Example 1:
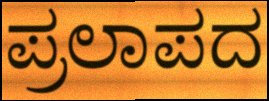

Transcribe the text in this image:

ಪ್ರಲಾಪದ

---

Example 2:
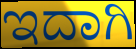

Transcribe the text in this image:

ಇದಾಗಿ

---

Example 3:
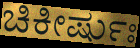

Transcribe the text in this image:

ಚಿಕೀರ್ಷುಃ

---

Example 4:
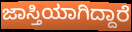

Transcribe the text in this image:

ಜಾಸ್ತಿಯಾಗಿದ್ದಾರೆ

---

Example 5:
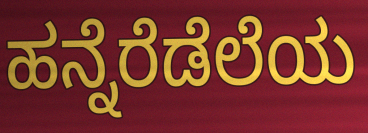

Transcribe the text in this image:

ಹನ್ನೆರೆಡೆಲೆಯ